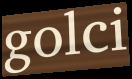
golci